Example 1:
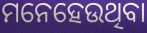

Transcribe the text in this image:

ମନେହେଉଥିବା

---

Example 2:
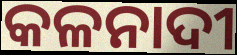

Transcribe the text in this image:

କଳନାଦୀ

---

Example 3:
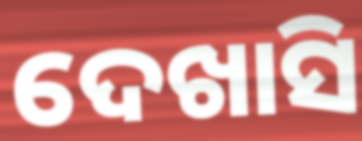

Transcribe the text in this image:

ଦେଖାସି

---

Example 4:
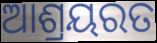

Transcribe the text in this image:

ଆଶ୍ରୟରତ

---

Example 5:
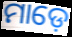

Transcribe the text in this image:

ମାଡ଼େ